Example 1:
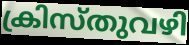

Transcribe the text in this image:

ക്രിസ്തുവഴി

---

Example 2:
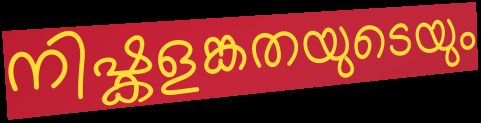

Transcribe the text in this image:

നിഷ്കളങ്കതയുടെയും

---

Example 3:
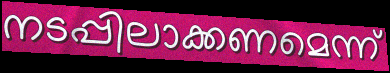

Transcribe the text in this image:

നടപ്പിലാക്കണമെന്ന്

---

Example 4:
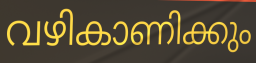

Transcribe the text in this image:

വഴികാണിക്കും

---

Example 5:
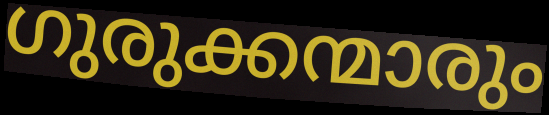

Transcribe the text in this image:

ഗുരുക്കന്മാരും